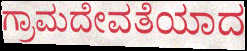
ಗ್ರಾಮದೇವತೆಯಾದ